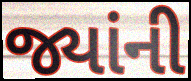
જ્યાંની